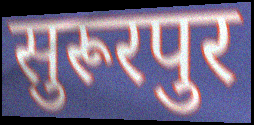
सुरूरपुर